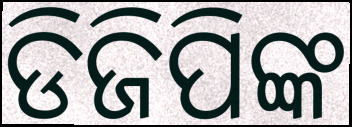
ଡିଜିପିଙ୍କ